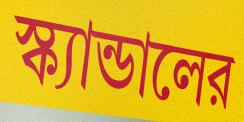
স্ক্যান্ডালের